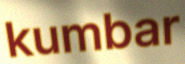
kumbar